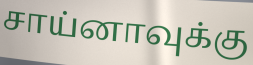
சாய்னாவுக்கு